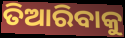
ତିଆରିବାକୁ